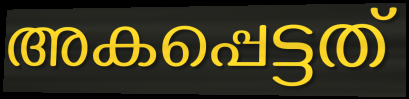
അകപ്പെട്ടത്